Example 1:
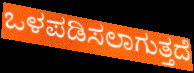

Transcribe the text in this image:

ಒಳಪಡಿಸಲಾಗುತ್ತದೆ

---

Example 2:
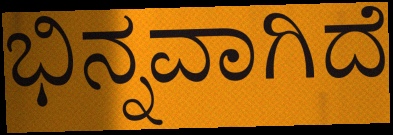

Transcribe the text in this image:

ಭಿನ್ನವಾಗಿದೆ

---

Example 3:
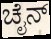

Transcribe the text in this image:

ಚೈನ್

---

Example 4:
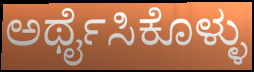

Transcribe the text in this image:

ಅರ್ಥೈಸಿಕೊಳ್ಳು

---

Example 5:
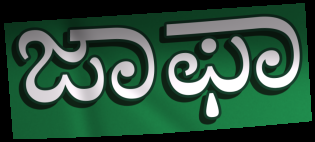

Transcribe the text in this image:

ಜಾಫಾ